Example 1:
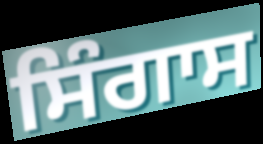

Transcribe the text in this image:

ਸਿੰਗਾਸ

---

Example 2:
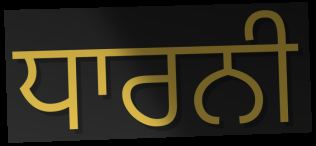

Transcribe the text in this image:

ਧਾਰਨੀ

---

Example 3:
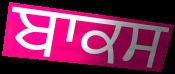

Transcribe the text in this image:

ਬਾਕਸ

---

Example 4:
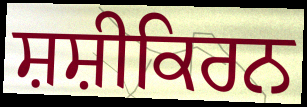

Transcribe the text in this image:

ਸ਼ਸ਼ੀਕਿਰਨ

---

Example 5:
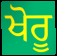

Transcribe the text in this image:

ਖੋਰੂ